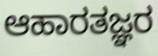
ಆಹಾರತಜ್ಞರ